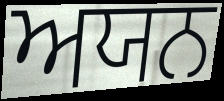
ਅਯਨ